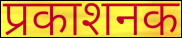
प्रकाशनक